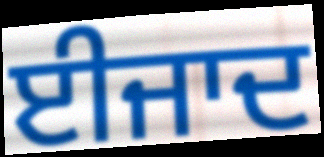
ਈਜਾਦ